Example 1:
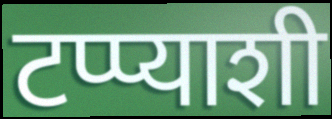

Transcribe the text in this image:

टप्प्याशी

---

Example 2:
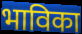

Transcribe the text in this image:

भाविका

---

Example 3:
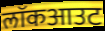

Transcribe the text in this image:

लॉकआउट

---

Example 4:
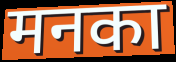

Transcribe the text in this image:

मनका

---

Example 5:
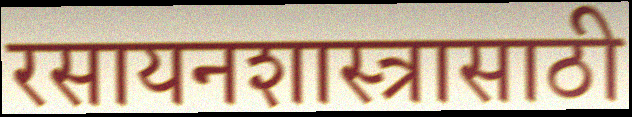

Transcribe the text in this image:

रसायनशास्त्रासाठी